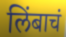
लिंबाचं